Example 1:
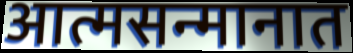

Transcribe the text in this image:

आत्मसन्मानात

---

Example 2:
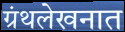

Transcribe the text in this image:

ग्रंथलेखनात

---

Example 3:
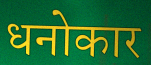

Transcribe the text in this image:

धनोकार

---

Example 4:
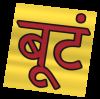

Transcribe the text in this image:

बूटं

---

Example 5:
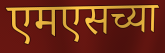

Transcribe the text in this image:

एमएसच्या